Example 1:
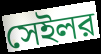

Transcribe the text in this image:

সেইলর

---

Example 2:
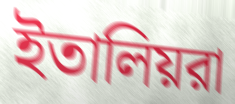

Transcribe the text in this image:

ইতালিয়রা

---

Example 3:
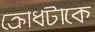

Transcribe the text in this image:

ক্রোধটাকে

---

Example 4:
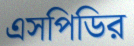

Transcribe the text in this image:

এসপিডির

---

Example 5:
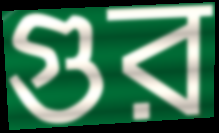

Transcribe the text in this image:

গুর